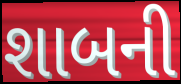
શાબની